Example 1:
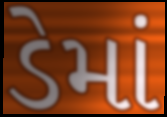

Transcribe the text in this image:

ડેમાં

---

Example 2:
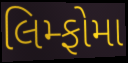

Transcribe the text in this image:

લિમ્ફોમા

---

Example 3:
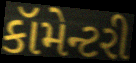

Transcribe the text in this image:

કૉમેન્ટરી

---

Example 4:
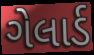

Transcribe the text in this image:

ગેલાર્ડ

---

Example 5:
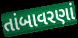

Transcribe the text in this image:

તાંબાવરણાં